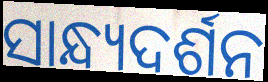
ସାନ୍ଧ୍ୟଦର୍ଶନ